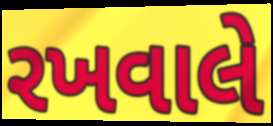
રખવાલે